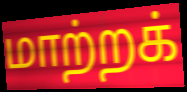
மாற்றக்